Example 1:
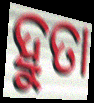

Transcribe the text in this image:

ହୁତା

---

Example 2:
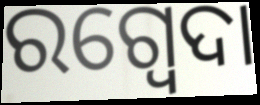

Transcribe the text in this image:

ରଗ୍ବେଦା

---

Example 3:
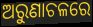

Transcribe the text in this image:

ଅରୁଣାଚଳରେ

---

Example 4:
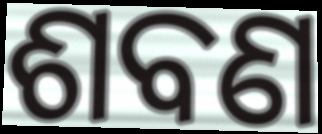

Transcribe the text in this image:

ଶବଣ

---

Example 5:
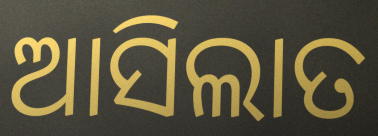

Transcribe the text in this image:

ଆସିଲାତ